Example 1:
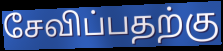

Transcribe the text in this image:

சேவிப்பதற்கு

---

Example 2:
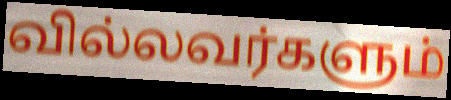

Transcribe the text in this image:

வில்லவர்களும்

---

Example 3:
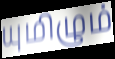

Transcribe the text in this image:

யுமிழும்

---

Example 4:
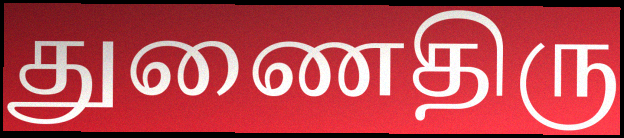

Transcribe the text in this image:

துணைதிரு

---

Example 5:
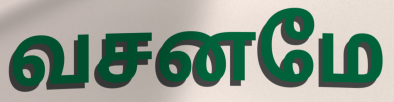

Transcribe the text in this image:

வசனமே